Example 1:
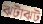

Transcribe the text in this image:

ঝটাঝট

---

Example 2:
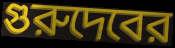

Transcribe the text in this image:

গুরুদেবের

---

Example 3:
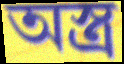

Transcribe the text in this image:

অস্ত্র্র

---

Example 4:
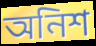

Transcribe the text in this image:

অনিশ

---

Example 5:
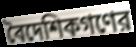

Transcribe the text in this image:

বৈদেশিকগণের